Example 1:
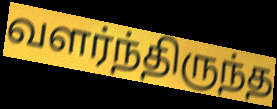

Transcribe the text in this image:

வளர்ந்திருந்த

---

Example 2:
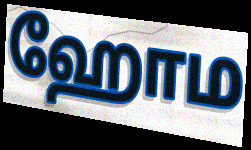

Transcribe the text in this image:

ஹோம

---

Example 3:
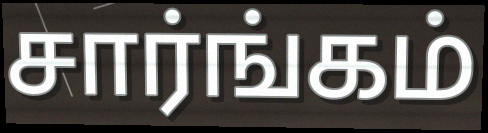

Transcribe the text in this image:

சார்ங்கம்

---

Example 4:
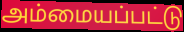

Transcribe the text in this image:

அம்மையப்பட்டு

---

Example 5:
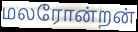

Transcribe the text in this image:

மலரோன்றன்